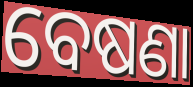
ବେଷଣା